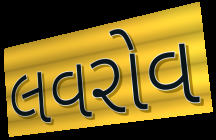
લવરોવ